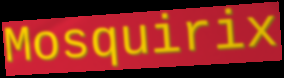
Mosquirix